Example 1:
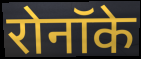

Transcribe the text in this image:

रोनॉके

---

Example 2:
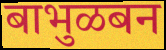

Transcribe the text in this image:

बाभुळबन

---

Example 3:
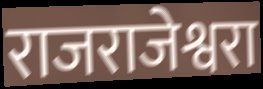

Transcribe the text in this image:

राजराजेश्वरा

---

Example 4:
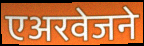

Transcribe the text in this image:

एअरवेजने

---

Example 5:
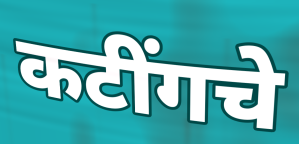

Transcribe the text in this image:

कटींगचे